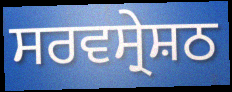
ਸਰਵਸ੍ਰੇਸ਼ਠ